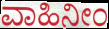
ವಾಹಿನೀಂ